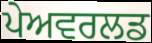
ਪੇਅਵਰਲਡ